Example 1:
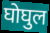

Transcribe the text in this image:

घोघुल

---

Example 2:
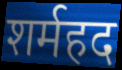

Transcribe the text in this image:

शर्महद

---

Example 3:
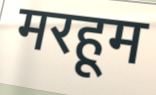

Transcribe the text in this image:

मरहूम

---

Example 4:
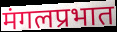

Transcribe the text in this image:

मंगलप्रभात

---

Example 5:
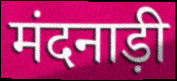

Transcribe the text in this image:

मंदनाड़ी